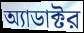
অ্যাডাক্টর